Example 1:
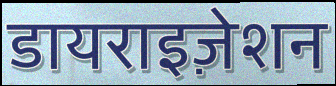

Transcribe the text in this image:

डायराइज़ेशन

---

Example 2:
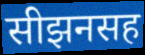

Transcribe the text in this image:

सीझनसह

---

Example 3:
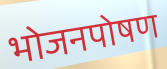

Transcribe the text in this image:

भोजनपोषण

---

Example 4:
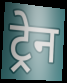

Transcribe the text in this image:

ट्र्रेन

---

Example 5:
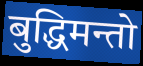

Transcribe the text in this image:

बुद्धिमन्तो